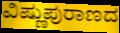
ವಿಷ್ಣುಪುರಾಣದ